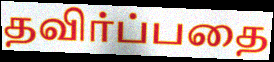
தவிர்ப்பதை